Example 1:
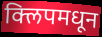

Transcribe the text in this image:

क्लिपमधून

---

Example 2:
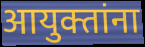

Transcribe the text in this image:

आयुक्‍तांना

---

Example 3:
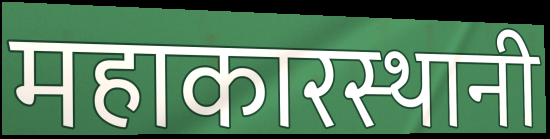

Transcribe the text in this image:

महाकारस्थानी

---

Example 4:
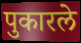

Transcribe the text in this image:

पुकारले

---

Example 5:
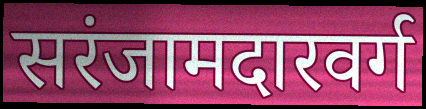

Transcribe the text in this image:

सरंजामदारवर्ग